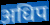
अधिप